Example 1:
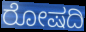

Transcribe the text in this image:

ರೋಷದಿ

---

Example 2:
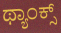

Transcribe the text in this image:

ಥ್ಯಾಂಕ್ಸ್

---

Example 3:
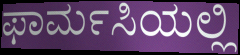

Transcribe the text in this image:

ಫಾರ್ಮಸಿಯಲ್ಲಿ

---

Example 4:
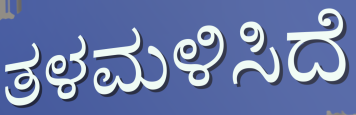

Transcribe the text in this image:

ತಳಮಳಿಸಿದೆ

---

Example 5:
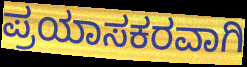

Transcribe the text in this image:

ಪ್ರಯಾಸಕರವಾಗಿ